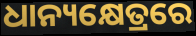
ଧାନ୍ୟକ୍ଷେତ୍ରରେ